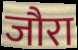
जौरा